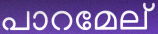
പാറമേല്